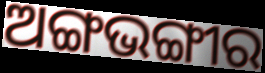
ଅଙ୍ଗଭଙ୍ଗୀର